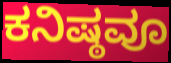
ಕನಿಷ್ಠವೂ